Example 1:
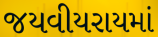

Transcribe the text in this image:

જયવીયરાયમાં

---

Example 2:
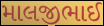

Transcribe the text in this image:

માલજીભાઈ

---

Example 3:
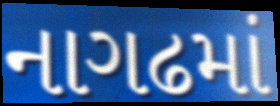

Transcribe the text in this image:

નાગઢમાં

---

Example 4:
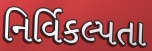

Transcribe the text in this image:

નિર્વિકલ્પતા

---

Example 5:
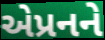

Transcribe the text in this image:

એપ્રનને